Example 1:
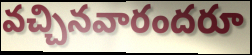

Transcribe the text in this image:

వచ్చినవారందరూ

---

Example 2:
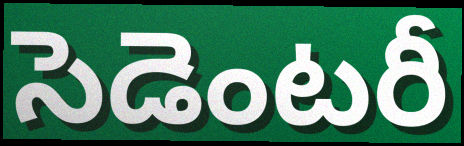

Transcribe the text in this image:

సెడెంటరీ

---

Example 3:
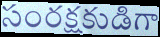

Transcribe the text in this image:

సంరక్షకుడిగా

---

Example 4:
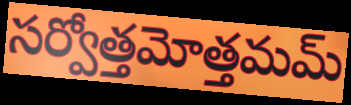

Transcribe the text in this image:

సర్వోత్తమోత్తమమ్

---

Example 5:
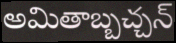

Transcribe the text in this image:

అమితాబ్బచ్చన్